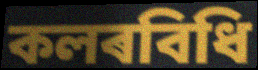
কলৰবিধি